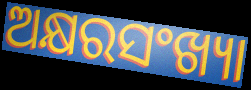
ଅକ୍ଷରସଂଖ୍ୟା